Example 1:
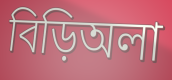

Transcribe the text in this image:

বিড়িঅলা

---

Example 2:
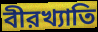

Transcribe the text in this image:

বীরখ্যাতি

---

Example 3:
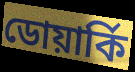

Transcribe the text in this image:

ডোয়ার্কি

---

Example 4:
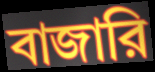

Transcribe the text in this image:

বাজারি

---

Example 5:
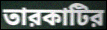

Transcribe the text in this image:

তারকাটির